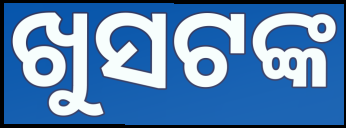
ଖୁସଟଙ୍କ